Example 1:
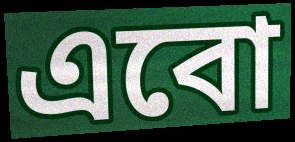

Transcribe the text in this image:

এবো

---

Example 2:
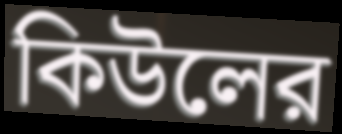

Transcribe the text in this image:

কিউলের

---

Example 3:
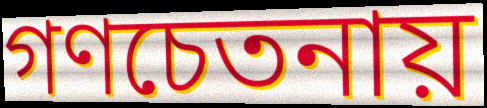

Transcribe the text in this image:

গণচেতনায়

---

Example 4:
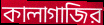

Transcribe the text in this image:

কালাগাজির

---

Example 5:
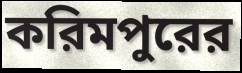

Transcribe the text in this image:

করিমপুরের